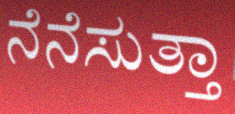
ನೆನೆಸುತ್ತಾ